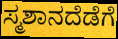
ಸ್ಮಶಾನದೆಡೆಗೆ